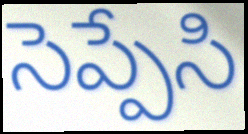
సెప్పేసి